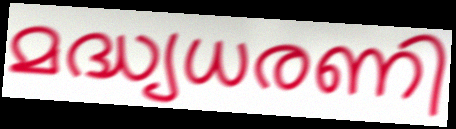
മദ്ധ്യധരണി